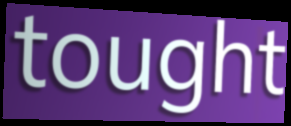
tought